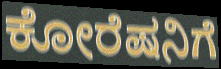
ಕೋರೆಷನಿಗೆ